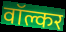
वॉल्कर